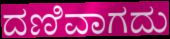
ದಣಿವಾಗದು